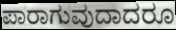
ಪಾರಾಗುವುದಾದರೂ